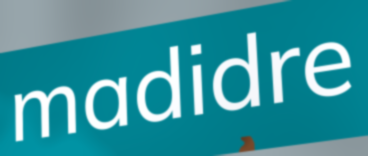
madidre